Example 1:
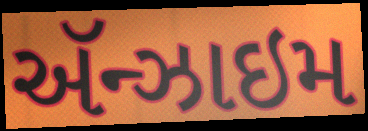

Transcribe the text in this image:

ઍન્ઝાઇમ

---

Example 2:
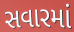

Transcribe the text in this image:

સવારમાં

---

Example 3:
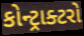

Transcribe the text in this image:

કોન્ટ્રાક્ટરો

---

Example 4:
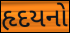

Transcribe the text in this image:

હૃદયનો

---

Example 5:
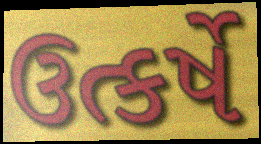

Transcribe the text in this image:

ઉત્કર્ષે